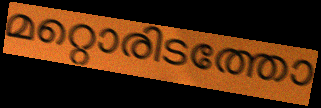
മറ്റൊരിടത്തോ